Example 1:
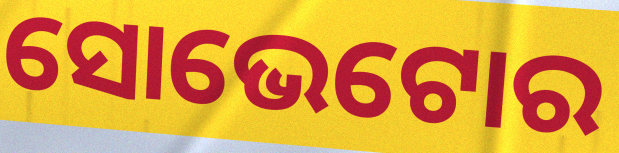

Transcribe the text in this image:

ସୋଭେଟୋର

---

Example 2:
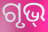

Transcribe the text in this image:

ଗୃଭ୍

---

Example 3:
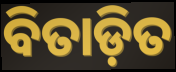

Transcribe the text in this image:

ବିତାଡ଼ିତ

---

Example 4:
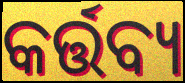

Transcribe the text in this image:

କର୍ତ୍ତବ୍ୟ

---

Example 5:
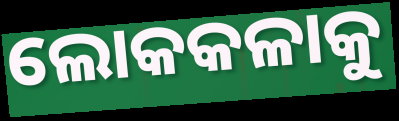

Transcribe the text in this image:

ଲୋକକଳାକୁ